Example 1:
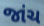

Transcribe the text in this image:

જાંચ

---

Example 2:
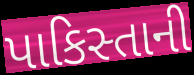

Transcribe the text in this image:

પાકિસ્તાની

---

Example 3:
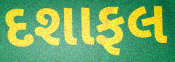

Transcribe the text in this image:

દશાફલ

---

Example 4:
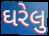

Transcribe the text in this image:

ઘરેલુ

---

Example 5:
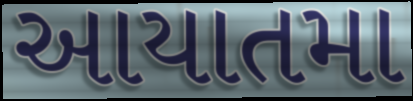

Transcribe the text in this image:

આયાતમા